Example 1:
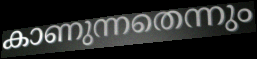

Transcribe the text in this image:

കാണുന്നതെന്നും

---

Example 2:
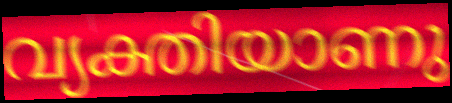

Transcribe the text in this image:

വ്യക്തിയാണു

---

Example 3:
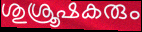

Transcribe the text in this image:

ശുശ്രൂഷകരും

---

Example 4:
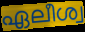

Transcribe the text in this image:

ഏലീശ്വ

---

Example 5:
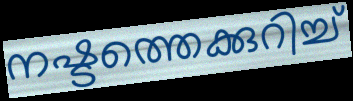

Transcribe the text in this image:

നഷ്ടത്തെക്കുറിച്ച്